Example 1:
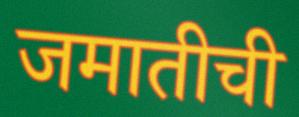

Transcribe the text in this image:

जमातीची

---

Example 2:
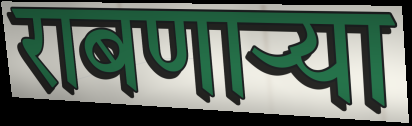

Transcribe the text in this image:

राबणार्‍या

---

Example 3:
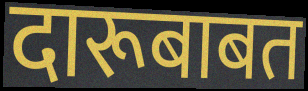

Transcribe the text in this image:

दारूबाबत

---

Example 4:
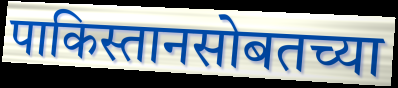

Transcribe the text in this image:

पाकिस्तानसोबतच्या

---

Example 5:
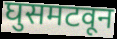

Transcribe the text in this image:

घुसमटवून